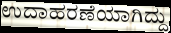
ಉದಾಹರಣೆಯಾಗಿದ್ದು